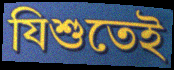
যিশুতেই